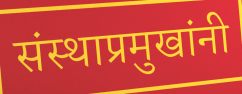
संस्थाप्रमुखांनी